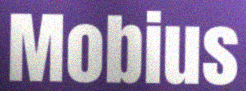
Mobius